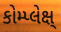
કોમ્પ્લેક્ષ્